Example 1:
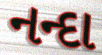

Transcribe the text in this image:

નન્દા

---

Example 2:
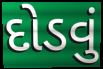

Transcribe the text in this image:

દોડવું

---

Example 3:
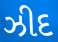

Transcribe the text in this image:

ઝીદ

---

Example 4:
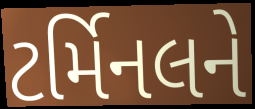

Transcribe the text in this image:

ટર્મિનલને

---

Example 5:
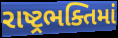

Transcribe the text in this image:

રાષ્ટ્રભક્તિમાં